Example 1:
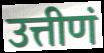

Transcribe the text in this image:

उत्तीणं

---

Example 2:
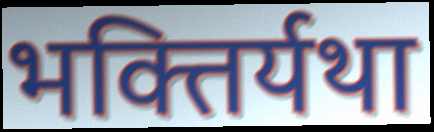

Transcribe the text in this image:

भक्तिर्यथा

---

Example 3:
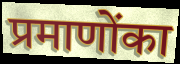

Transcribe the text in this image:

प्रमाणोंका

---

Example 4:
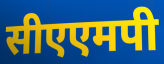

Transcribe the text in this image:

सीएएमपी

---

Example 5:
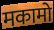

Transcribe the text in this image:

मकामो